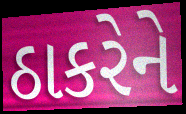
ઠાકરેને